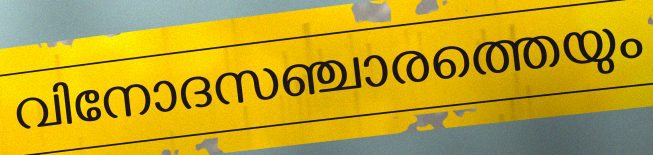
വിനോദസഞ്ചാരത്തെയും